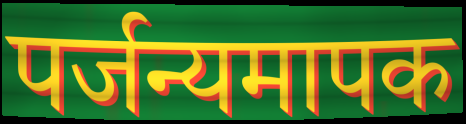
पर्जन्यमापक